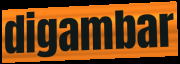
digambar